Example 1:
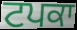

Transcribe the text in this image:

ਟਪਕਾ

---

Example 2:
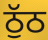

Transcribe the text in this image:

ਠੁੱਠ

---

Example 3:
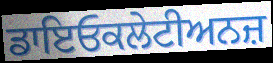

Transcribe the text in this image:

ਡਾਇਓਕਲੇਟੀਅਨਜ਼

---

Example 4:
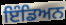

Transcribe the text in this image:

ਇੰਡਿਅਨ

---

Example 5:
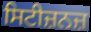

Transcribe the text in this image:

ਸਿਟੀਜ਼ਨਜ਼